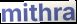
mithra